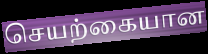
செயற்கையான